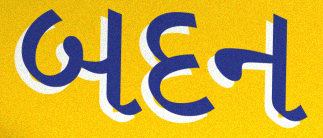
બદન